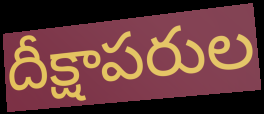
దీక్షాపరుల